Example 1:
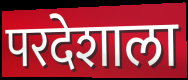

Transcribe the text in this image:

परदेशाला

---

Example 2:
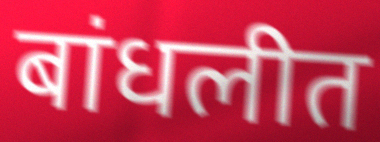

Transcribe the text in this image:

बांधलीत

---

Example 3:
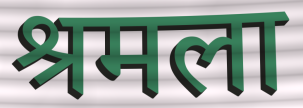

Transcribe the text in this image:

श्रमला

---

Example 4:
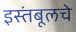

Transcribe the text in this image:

इस्तंबूलचे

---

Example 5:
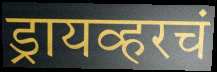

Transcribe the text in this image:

ड्रायव्हरचं